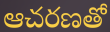
ఆచరణతో